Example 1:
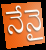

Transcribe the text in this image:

నేనై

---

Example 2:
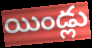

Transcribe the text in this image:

యిండ్లు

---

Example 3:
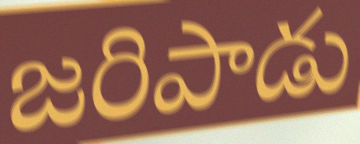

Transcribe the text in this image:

జరిపాడు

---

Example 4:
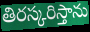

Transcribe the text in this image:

తిరస్కరిస్తాను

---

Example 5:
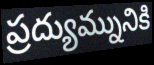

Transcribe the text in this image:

ప్రద్యుమ్నునికి